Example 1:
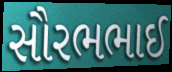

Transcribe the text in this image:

સૌરભભાઈ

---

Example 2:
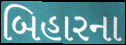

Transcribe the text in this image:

બિહારના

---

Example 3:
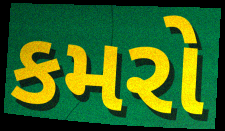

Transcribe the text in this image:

કમરો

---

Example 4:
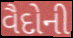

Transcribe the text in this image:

વૈદોની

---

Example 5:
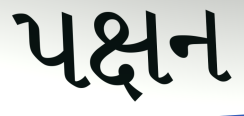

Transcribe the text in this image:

પક્ષન